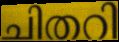
ചിതറി